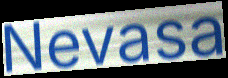
Nevasa